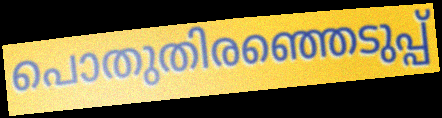
പൊതുതിരഞ്ഞെടുപ്പ്